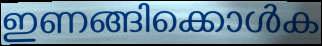
ഇണങ്ങിക്കൊൾക